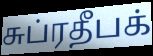
சுப்ரதீபக்